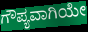
ಗೌಪ್ಯವಾಗಿಯೇ